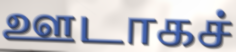
ஊடாகச்